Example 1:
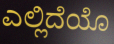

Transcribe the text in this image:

ಎಲ್ಲಿದೆಯೊ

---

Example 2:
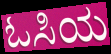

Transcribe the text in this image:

ಓಸಿಯ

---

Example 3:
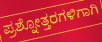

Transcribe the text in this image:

ಪ್ರಶ್ನೋತ್ತರಗಳಿಗಾಗಿ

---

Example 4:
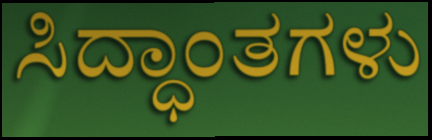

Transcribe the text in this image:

ಸಿದ್ಧಾಂತಗಳು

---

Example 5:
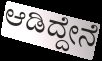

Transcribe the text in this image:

ಆಡಿದ್ದೇನೆ